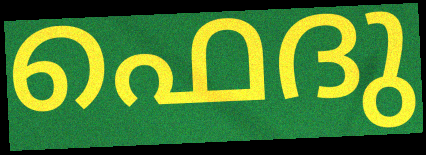
ഫെദു